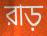
রাড়